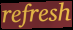
refresh